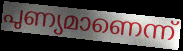
പുണ്യമാണെന്ന്